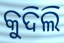
କୁଦିଲି